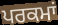
ਪਰਕਮਾਂ